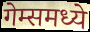
गेम्समध्ये